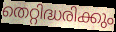
തെറ്റിദ്ധരിക്കും